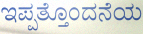
ಇಪ್ಪತ್ತೊಂದನೆಯ